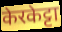
केरकेट्टा